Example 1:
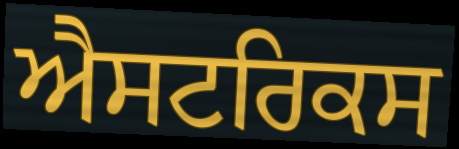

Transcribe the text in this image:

ਐਸਟਰਿਕਸ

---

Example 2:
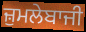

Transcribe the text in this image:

ਜ਼ੁਮਲੇਬਾਜੀ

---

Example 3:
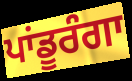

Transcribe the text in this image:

ਪਾਂਡੂਰੰਗਾ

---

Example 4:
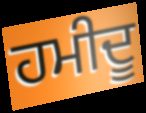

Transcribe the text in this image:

ਹਮੀਦੂ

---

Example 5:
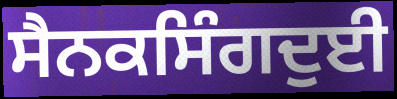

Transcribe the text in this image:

ਸੈਨਕਸਿੰਗਦੁਈ